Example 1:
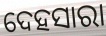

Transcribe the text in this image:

ଦେହସାରା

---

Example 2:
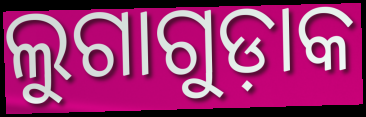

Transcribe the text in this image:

ଲୁଗାଗୁଡ଼ାକ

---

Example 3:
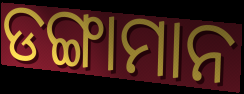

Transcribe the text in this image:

ଡଙ୍ଗାମାନ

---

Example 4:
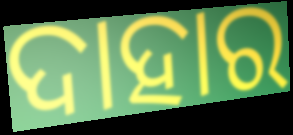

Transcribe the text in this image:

ଦାହାର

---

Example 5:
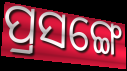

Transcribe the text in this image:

ପ୍ରସଙ୍ଗେ